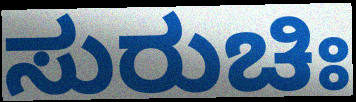
ಸುರುಚಿಃ